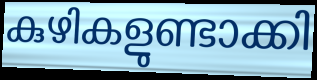
കുഴികളുണ്ടാക്കി